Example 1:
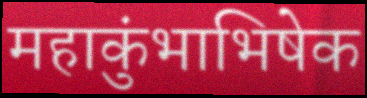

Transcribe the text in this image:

महाकुंभाभिषेक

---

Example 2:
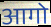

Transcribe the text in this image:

आगो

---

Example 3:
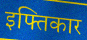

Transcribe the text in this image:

इफ्तिकार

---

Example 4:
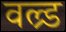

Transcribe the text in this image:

वल्र्ड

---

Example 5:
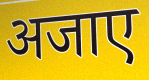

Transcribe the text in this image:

अजाए